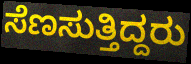
ಸೆಣಸುತ್ತಿದ್ದರು